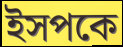
ইসপকে